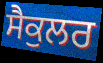
ਸੈਕੁਲਰ